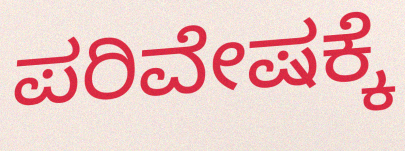
ಪರಿವೇಷಕ್ಕೆ